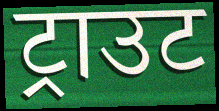
ट्राउट